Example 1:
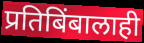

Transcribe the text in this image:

प्रतिबिंबालाही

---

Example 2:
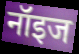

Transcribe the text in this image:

नॉइज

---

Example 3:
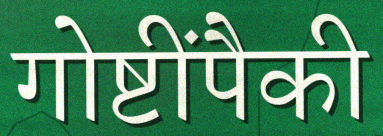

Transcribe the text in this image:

गोष्टींपैकी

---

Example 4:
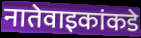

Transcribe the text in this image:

नातेवाइकांकडे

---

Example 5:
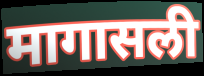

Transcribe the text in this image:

मागासली